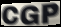
CGP